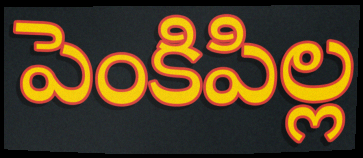
పెంకిపిల్ల